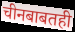
चीनबाबतही